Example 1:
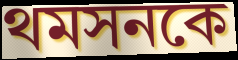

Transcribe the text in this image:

থমসনকে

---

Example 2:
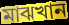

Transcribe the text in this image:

মাঝখান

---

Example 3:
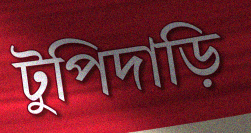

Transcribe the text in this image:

টুপিদাড়ি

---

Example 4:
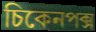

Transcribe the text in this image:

চিকেনপক্স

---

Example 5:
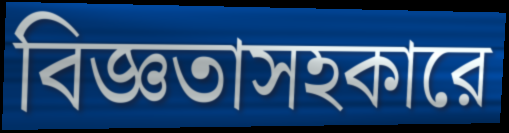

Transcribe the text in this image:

বিজ্ঞতাসহকারে